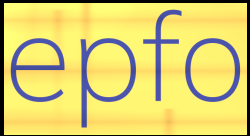
epfo